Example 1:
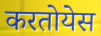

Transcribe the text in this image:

करतोयेस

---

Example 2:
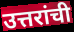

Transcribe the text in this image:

उत्तरांची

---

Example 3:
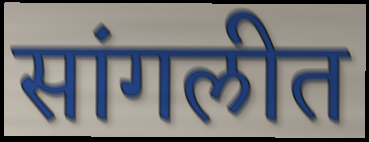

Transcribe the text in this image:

सांगलीत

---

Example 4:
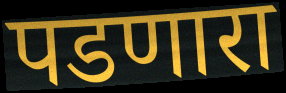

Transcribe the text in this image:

पडणारा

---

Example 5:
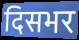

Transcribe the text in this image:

दिसभर